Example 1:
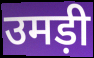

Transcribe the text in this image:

उमड़ी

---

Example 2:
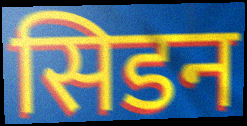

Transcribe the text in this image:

सिडन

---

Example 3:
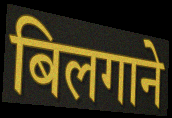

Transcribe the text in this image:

बिलगाने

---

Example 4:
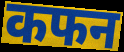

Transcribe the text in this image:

कफन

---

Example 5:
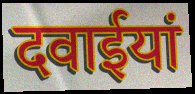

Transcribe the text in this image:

दवाईयां